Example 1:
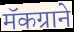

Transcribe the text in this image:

मॅकग्राने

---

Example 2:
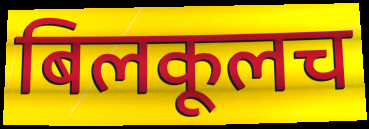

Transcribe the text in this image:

बिलकूलच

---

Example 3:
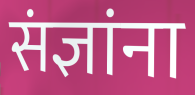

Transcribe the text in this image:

संज्ञांना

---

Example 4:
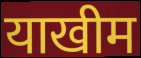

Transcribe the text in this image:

याखीम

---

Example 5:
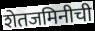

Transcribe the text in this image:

शेतजमिनीची